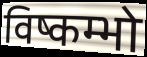
विष्कम्भो